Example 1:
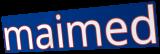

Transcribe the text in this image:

maimed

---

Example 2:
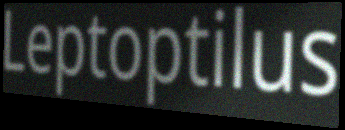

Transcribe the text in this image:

Leptoptilus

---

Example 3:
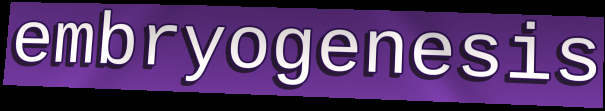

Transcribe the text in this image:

embryogenesis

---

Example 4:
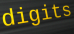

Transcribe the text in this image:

digits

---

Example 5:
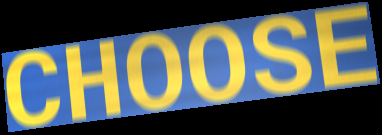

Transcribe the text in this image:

CHOOSE